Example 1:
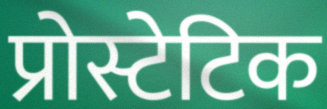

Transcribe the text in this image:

प्रोस्टेटिक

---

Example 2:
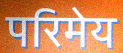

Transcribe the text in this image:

परिमेय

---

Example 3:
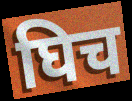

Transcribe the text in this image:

घिच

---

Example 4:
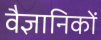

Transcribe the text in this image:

वैज्ञानिकों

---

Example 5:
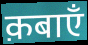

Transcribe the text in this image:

क़बाएँ